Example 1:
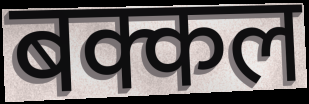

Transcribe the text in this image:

बक्कल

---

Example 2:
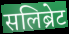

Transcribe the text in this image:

सलिब्रेट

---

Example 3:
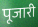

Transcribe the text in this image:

पूजारी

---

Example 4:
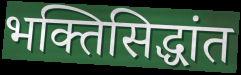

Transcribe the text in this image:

भक्तिसिद्धांत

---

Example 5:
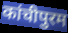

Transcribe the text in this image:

कांचीपुरम